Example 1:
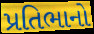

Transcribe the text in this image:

પ્રતિભાનો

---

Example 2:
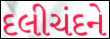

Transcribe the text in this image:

દલીચંદને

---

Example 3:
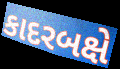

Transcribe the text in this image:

કાદરબક્ષે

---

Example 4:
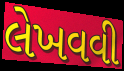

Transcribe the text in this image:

લેખવવી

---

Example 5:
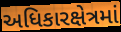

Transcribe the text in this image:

અધિકારક્ષેત્રમાં